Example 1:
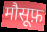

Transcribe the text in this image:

मौसूफ़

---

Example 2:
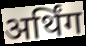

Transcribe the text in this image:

अर्थिंग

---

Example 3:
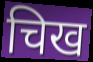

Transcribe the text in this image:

चिख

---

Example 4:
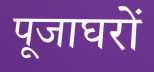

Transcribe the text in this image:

पूजाघरों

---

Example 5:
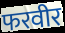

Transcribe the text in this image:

फरवीर